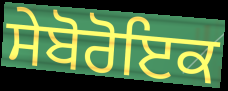
ਸੇਬੋਰੋਇਕ